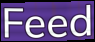
Feed